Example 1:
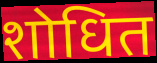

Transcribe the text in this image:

शोधित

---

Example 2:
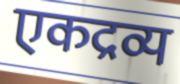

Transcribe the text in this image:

एकद्रव्य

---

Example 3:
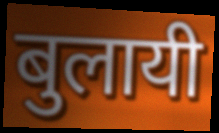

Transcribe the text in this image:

बुलायी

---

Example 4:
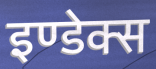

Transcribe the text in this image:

इण्डेक्स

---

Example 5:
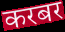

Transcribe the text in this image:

करबर